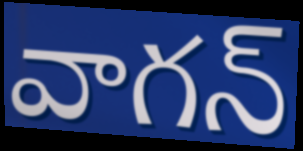
వాగన్